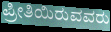
ಪ್ರೀತಿಯಿರುವವರು